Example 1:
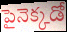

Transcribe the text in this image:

పైనెక్కడో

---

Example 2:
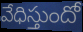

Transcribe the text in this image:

వేధిస్తుందో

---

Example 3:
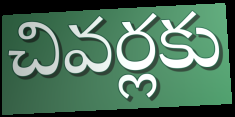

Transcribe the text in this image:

చివర్లకు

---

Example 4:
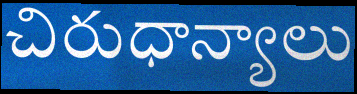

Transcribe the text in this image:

చిరుధాన్యాలు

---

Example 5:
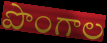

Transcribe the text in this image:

పొంగాల